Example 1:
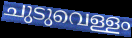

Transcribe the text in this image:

ചുടുവെള്ളം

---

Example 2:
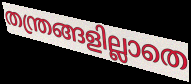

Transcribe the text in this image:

തന്ത്രങ്ങളില്ലാതെ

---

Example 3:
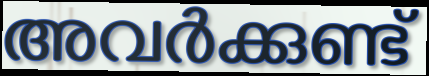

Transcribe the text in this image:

അവർക്കുണ്ട്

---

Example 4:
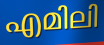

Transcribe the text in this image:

എമിലി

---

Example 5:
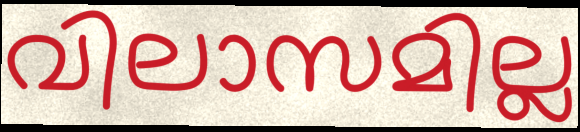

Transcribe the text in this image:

വിലാസമില്ല